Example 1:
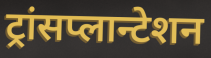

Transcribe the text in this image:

ट्रांसप्लान्टेशन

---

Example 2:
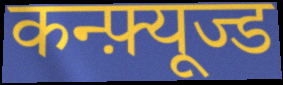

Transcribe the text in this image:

कन्फ़्यूज्ड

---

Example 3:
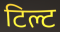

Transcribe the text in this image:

टिल्ट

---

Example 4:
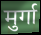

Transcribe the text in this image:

मुर्गा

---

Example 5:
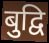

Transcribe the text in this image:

बुद्वि